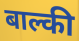
बाल्की